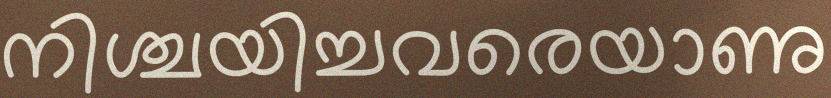
നിശ്ചയിച്ചവരെയാണു